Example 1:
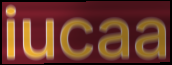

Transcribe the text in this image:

iucaa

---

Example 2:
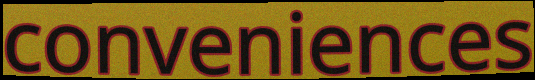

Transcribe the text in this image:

conveniences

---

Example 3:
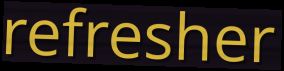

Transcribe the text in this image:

refresher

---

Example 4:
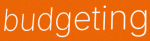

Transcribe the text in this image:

budgeting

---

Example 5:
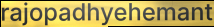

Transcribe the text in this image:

rajopadhyehemant